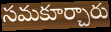
సమకూర్చారు